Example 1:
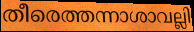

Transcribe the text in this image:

തീരെത്തന്നാശാവല്ലി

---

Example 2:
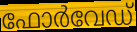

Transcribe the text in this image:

ഫോർവേഡ്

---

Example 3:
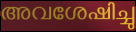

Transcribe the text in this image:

അവശേഷിച്ചു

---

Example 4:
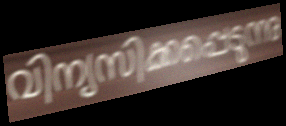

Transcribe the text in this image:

വിന്യസിക്കപ്പെടുന്നു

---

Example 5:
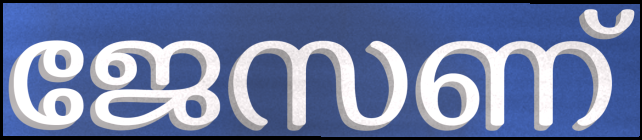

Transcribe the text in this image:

ജേസണ്